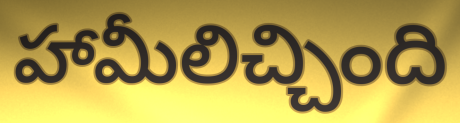
హామీలిచ్చింది